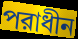
পরাধীন